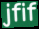
jfif